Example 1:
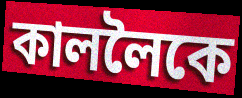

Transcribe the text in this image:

কাললৈকে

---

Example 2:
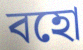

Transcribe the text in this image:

বহো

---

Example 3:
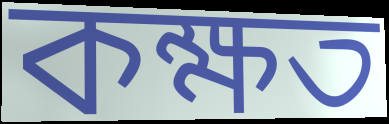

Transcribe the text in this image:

কক্ষত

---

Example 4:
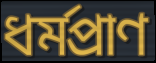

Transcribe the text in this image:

ধৰ্মপ্ৰাণ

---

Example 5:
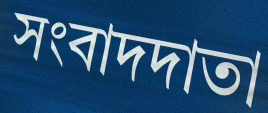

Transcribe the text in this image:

সংবাদদাতা